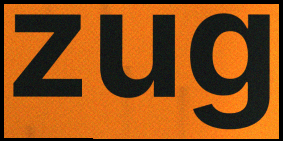
zug